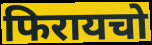
फिरायचो